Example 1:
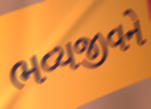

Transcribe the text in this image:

ભવ્યજીવને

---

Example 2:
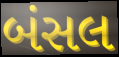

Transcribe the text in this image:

બંસલ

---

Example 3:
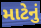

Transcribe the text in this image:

માટેનું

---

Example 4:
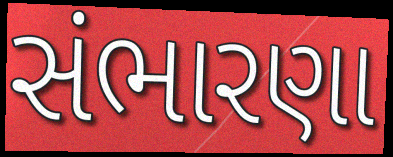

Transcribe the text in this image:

સંભારણા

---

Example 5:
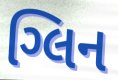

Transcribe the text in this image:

ગ્લિન